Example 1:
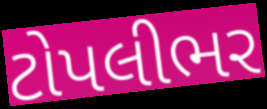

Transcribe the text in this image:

ટોપલીભર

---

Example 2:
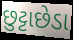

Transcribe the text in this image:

છુટ્ટાછેડા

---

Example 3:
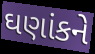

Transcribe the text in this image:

ઘણાંકને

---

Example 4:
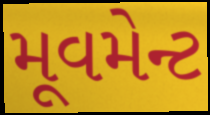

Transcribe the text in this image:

મૂવમેન્ટ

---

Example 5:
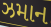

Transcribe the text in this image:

ઝમાન